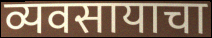
व्यवसायाचा